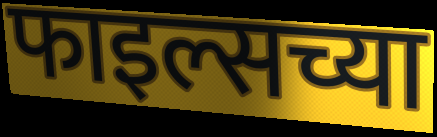
फाइल्सच्या